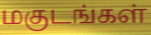
மகுடங்கள்